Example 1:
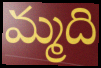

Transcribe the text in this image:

మ్మది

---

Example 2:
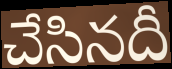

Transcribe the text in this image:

చేసినదీ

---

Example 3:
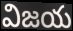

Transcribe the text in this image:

విజయ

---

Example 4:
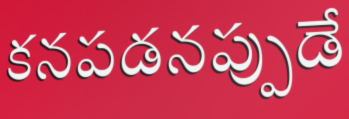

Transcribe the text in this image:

కనపడనప్పుడే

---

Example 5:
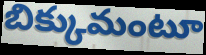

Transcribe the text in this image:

బిక్కుమంటూ